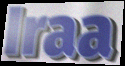
Iraa